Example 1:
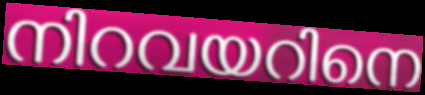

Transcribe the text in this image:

നിറവയറിനെ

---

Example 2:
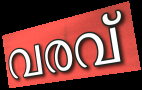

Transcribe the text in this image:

വരവ്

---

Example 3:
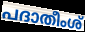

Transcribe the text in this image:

പദാതീംശ്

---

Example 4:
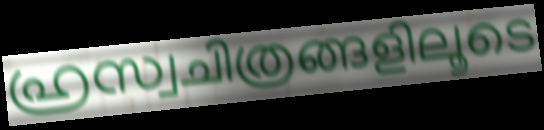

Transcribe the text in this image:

ഹ്രസ്വചിത്രങ്ങളിലൂടെ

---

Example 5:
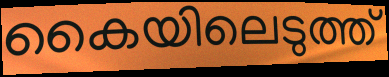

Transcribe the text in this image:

കൈയിലെടുത്ത്